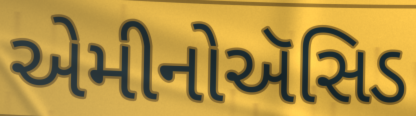
એમીનોઍસિડ